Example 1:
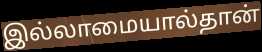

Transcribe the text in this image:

இல்லாமையால்தான்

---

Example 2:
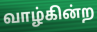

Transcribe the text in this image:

வாழ்கின்ற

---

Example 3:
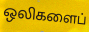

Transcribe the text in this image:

ஒலிகளைப்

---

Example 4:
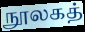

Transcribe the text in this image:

நூலகத்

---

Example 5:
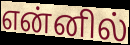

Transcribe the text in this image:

என்னில்